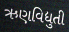
ઋણવિદ્યુતી